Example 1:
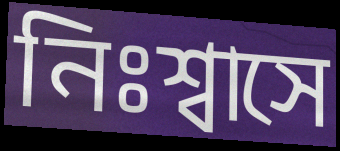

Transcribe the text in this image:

নিঃশ্বাসে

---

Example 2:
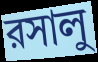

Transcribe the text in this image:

রসালু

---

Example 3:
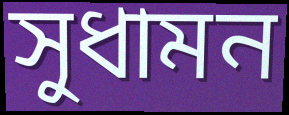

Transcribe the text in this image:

সুধামন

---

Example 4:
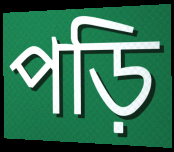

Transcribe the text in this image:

পড়ি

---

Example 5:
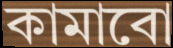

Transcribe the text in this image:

কামাবো